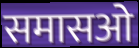
समासओ